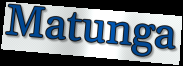
Matunga